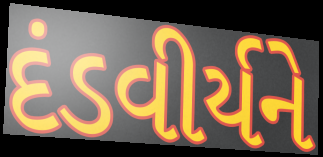
દંડવીર્યને